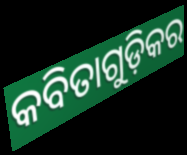
କବିତାଗୁଡ଼ିକର